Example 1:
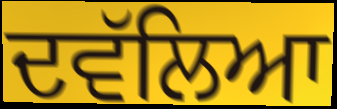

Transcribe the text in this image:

ਦਵੱਲਿਆ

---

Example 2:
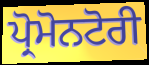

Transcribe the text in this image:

ਪ੍ਰੋਮੋਨਟੋਰੀ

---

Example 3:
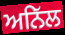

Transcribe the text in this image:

ਅਨਿੱਲ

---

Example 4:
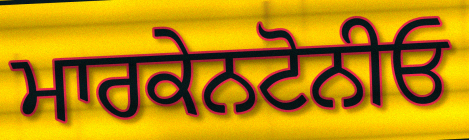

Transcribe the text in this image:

ਮਾਰਕੇਨਟੋਨੀਓ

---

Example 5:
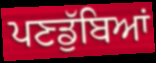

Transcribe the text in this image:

ਪਣਡੁੱਬਿਆਂ